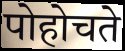
पोहोचते